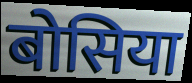
बोसिया